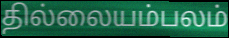
தில்லையம்பலம்